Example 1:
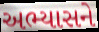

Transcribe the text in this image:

અભ્યાસને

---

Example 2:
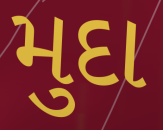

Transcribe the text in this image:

મુદા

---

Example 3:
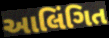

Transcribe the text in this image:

આલિંગિત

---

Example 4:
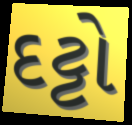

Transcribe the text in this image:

દટ્ટો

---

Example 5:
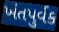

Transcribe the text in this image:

ખંતપુર્વક